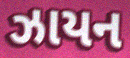
ઝાયન